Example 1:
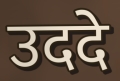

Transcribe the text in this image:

उददे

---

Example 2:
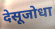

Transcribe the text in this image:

देसूजोधा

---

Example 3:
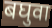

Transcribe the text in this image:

बघुवा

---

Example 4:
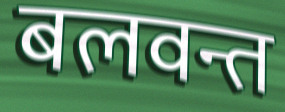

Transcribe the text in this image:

बलवन्‍त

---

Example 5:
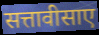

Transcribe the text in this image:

सत्तावीसाए